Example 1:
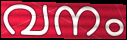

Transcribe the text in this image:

വനം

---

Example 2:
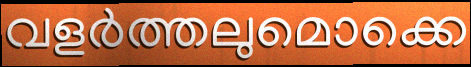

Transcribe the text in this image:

വളർത്തലുമൊക്കെ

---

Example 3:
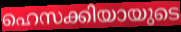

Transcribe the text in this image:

ഹെസക്കിയായുടെ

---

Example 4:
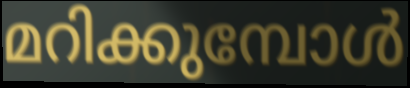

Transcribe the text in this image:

മറിക്കുമ്പോൾ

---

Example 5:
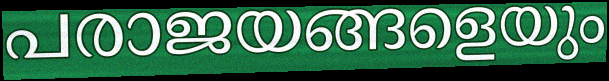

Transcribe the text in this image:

പരാജയങ്ങളെയും